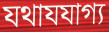
যথাযযাগ্য